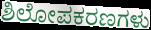
ಶಿಲೋಪಕರಣಗಳು